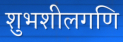
शुभशीलगणि